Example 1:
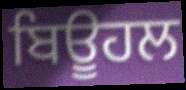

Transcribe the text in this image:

ਬਿਊਹਲ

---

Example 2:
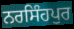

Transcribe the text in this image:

ਨਰਸਿੰਹਪੁਰ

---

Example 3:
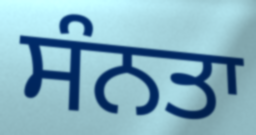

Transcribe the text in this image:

ਸੰਨਤਾ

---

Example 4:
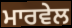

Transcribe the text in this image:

ਮਾਰਵੇਲ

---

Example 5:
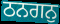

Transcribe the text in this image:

ਠਨਗਨੁ